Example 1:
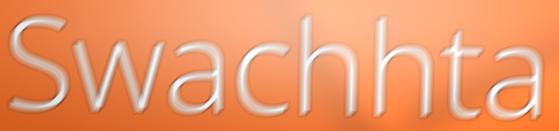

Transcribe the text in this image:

Swachhta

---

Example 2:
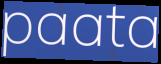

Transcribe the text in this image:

paata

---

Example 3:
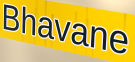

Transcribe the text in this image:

Bhavane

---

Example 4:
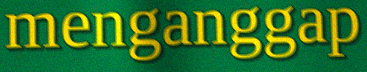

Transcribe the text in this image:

menganggap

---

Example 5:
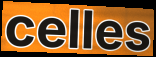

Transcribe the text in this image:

celles